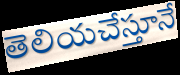
తెలియచేస్తూనే